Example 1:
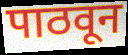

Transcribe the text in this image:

पाठवून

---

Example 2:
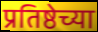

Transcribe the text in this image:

प्रतिष्ठेच्या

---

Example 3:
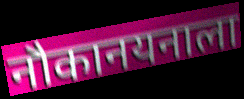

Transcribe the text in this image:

नौकानयनाला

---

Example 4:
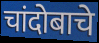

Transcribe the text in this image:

चांदोबाचे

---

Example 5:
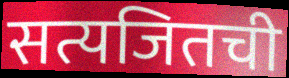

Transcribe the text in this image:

सत्यजितची